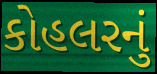
કોહલરનું